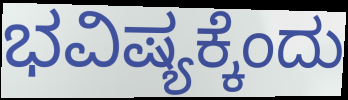
ಭವಿಷ್ಯಕ್ಕೆಂದು